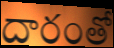
దారంతో